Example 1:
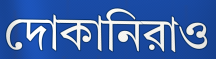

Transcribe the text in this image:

দোকানিরাও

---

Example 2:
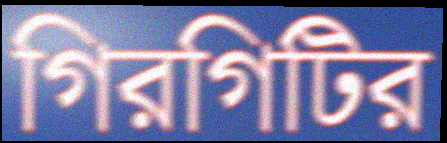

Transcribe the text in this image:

গিরগিটির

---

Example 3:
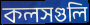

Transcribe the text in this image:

কলসগুলি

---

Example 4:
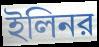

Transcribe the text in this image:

ইলিনর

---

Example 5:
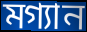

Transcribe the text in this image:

মগ্যান